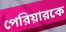
পেরিয়ারকে